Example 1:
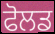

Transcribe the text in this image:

ਫੋਲਡ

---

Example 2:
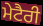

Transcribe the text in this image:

ਮੇਟੈਰੀ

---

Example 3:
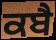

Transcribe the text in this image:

ਕਬੈ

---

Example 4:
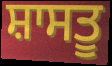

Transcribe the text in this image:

ਸ਼ਾਸਤੂ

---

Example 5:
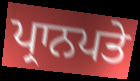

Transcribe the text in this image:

ਪ੍ਰਾਨਪਤੇ